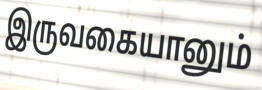
இருவகையானும்